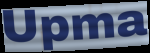
Upma